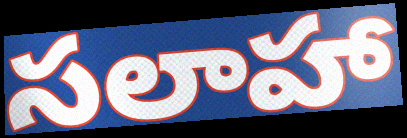
సలాహా